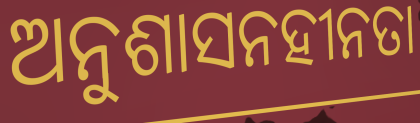
ଅନୁଶାସନହୀନତା